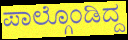
ಪಾಲ್ಗೊಂಡಿದ್ದ